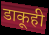
डाकूही